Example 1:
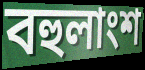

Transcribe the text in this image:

বহুলাংশ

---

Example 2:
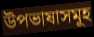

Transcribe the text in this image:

উপভাষাসমূহ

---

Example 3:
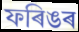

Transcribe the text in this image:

ফৰিঙৰ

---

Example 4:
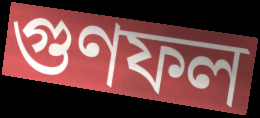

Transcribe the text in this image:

গুণফল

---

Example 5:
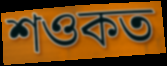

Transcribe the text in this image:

শওকত